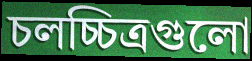
চলচ্চিত্রগুলো